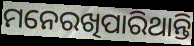
ମନେରଖିପାରିଥାନ୍ତି